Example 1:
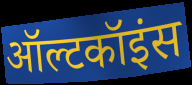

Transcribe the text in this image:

ऑल्टकॉइंस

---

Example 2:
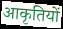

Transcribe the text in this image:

आकृतियों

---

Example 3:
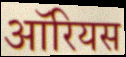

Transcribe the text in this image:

ऑरियस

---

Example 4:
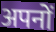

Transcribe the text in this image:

अपनों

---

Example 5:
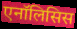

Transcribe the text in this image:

एनॉलिसिस